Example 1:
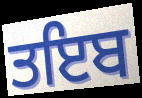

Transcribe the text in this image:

ਤਇਬ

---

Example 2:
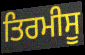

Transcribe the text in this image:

ਤਿਰਮੀਸੂ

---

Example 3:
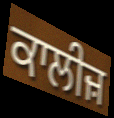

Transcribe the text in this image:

ਕਾਲੀਜ਼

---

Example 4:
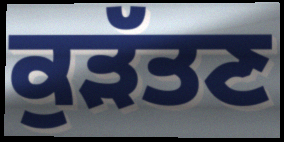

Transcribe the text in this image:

ਕੁੜੱਤਣ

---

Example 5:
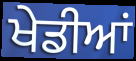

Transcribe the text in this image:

ਖੇਡੀਆਂ